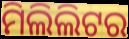
ମିଲିଲିଟର